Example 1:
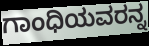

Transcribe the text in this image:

ಗಾಂಧಿಯವರನ್ನ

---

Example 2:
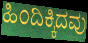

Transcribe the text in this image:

ಹಿಂದಿಕ್ಕಿದವು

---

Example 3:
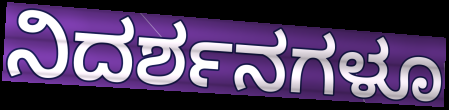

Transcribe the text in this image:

ನಿದರ್ಶನಗಳೂ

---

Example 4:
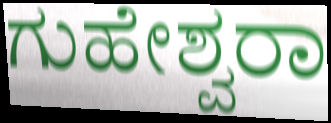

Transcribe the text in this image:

ಗುಹೇಶ್ವರಾ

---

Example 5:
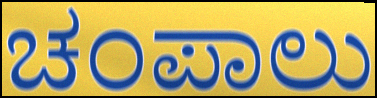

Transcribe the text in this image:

ಚಂಪಾಲು